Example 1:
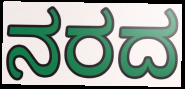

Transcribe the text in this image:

ನರದ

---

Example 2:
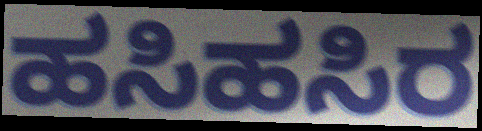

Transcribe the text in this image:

ಹಸಿಹಸಿರ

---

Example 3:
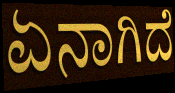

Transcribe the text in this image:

ಏನಾಗಿದೆ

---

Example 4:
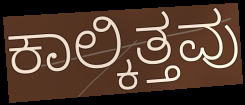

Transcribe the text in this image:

ಕಾಲ್ಕಿತ್ತವು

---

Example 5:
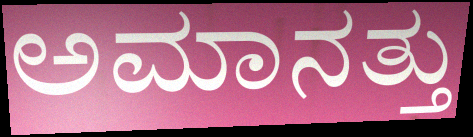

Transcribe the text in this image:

ಅಮಾನತ್ತು